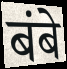
बंबे